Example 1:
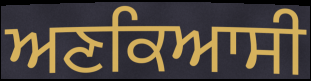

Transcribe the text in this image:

ਅਣਕਿਆਸੀ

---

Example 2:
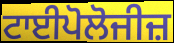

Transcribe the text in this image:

ਟਾਈਪੋਲੋਜੀਜ਼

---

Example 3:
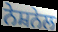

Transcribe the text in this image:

ਨੇਸ਼ਨੇਲ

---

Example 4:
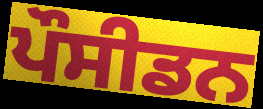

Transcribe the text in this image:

ਪੌਸੀਡਨ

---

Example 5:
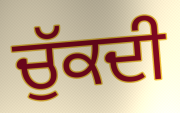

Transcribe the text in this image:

ਚੁੱਕਦੀ